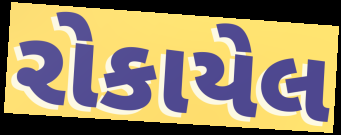
રોકાયેલ